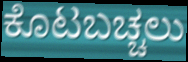
ಕೊಟಬಚ್ಚಲು